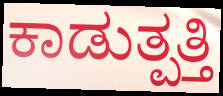
ಕಾಡುತ್ಪತ್ತಿ